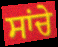
ਸਾਂਚੇ